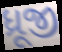
ધ્રૂજી